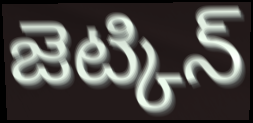
జెట్కిన్